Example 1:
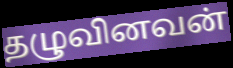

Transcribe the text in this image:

தழுவினவன்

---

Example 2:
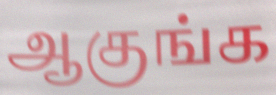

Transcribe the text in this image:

ஆகுங்க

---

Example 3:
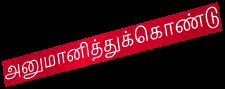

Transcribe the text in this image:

அனுமானித்துக்கொண்டு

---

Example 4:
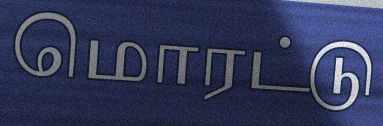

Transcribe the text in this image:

மொரட்டு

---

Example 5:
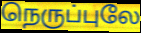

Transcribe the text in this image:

நெருப்புலே